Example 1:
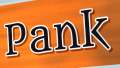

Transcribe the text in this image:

Pank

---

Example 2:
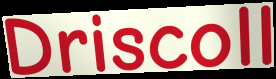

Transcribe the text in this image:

Driscoll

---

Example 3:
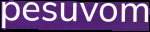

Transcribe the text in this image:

pesuvom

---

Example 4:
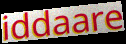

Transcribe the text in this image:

iddaare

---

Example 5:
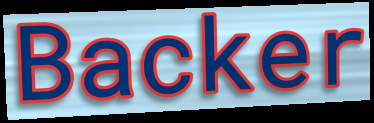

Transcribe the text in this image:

Backer